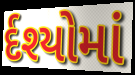
ર્દશ્યોમાં